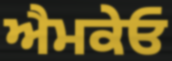
ਐਮਕੇਓ